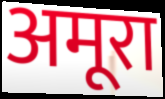
अमूरा